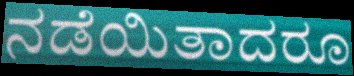
ನಡೆಯಿತಾದರೂ